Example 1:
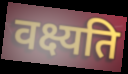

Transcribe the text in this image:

वक्ष्यति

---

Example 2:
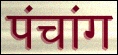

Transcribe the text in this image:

पंचांग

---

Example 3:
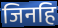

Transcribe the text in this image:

जिनहि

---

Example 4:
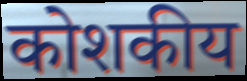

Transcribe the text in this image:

कोशकीय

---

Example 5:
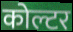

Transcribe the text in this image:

कोल्टर